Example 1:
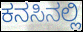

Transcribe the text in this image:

ಕನಸಿನಲ್ಲಿ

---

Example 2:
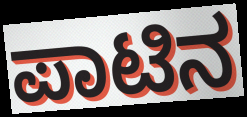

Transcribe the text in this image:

ಪಾಟಿನ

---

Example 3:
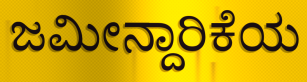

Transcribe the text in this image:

ಜಮೀನ್ದಾರಿಕೆಯ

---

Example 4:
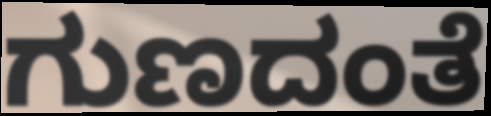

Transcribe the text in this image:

ಗುಣದಂತೆ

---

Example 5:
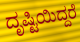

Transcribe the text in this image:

ದೃಷ್ಟಿಯಿದ್ದರೆ